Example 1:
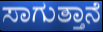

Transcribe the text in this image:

ಸಾಗುತ್ತಾನೆ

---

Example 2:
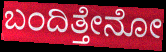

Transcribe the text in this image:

ಬಂದಿತ್ತೇನೋ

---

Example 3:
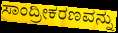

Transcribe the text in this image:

ಸಾಂದ್ರೀಕರಣವನ್ನು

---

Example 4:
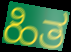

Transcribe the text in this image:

ಹಿತ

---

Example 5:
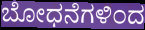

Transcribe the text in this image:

ಬೋಧನೆಗಳಿಂದ